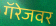
गॅरेजवर